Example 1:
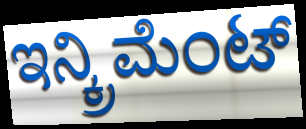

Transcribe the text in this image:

ಇನ್ಕ್ರಿಮೆಂಟ್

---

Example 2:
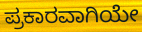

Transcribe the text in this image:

ಪ್ರಕಾರವಾಗಿಯೇ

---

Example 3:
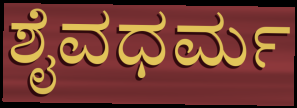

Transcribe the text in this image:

ಶೈವಧರ್ಮ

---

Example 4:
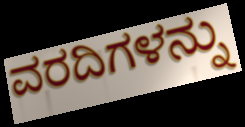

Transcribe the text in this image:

ವರದಿಗಳನ್ನು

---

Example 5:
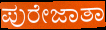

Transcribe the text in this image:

ಪುರೇಜಾತಾ